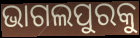
ଭାଗଲପୁରକୁ